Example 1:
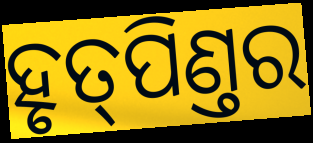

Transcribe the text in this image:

ହୃତ୍‌ପିଣ୍ତର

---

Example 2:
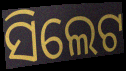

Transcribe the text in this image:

ସିଲେଟ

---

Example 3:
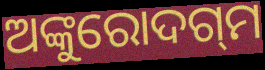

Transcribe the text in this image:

ଅଙ୍କୁରୋଦଗ୍‌ମ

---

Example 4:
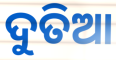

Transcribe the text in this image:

ଦୁତିଆ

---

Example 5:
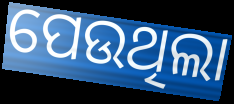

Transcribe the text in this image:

ପେଉଥିଲା